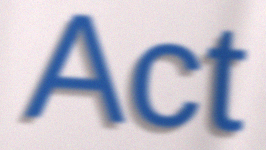
Act